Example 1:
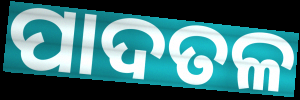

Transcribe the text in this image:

ପାଦତଳ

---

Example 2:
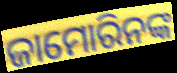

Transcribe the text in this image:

ଜାମୋରିନଙ୍କ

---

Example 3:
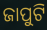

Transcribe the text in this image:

ଜାପୁଟି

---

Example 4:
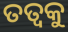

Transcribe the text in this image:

ତତ୍ୱକୁ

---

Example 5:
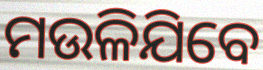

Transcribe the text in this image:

ମଉଳିଯିବେ